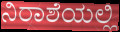
ನಿರಾಶೆಯಲ್ಲಿ